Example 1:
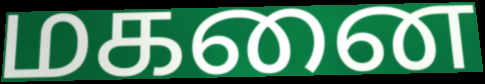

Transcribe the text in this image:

மகனை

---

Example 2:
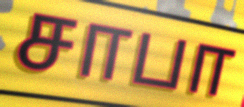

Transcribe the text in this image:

சாபா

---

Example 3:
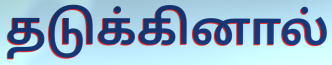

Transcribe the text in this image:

தடுக்கினால்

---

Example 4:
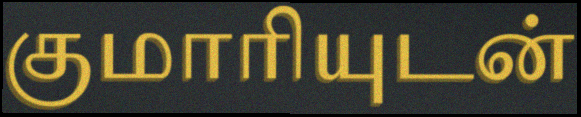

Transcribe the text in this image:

குமாரியுடன்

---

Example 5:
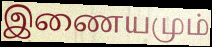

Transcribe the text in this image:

இணையமும்